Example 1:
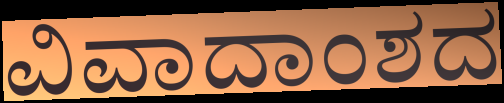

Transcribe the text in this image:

ವಿವಾದಾಂಶದ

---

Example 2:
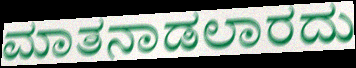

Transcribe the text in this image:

ಮಾತನಾಡಲಾರದು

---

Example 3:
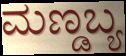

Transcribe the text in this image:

ಮಣ್ಡಬ್ಯ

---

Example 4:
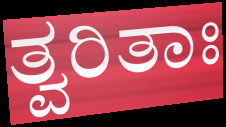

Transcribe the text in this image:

ತ್ವರಿತಾಃ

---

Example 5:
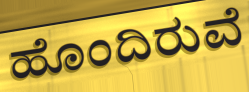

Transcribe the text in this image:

ಹೊಂದಿರುವೆ